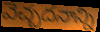
వెచ్చదనాన్ని